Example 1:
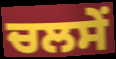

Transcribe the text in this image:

ਚਲਸੇਂ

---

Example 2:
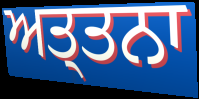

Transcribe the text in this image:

ਅਤ੍ਤਨਾ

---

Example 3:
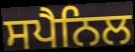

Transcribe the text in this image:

ਸਪੈਨਿਲ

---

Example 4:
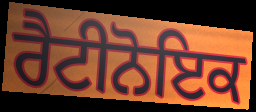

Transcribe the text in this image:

ਰੈਟੀਨੋਇਕ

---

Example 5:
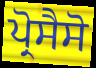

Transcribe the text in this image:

ਪ੍ਰੋਸੈਸੋ